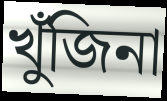
খুঁজিনা